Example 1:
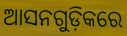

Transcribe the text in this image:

ଆସନଗୁଡ଼ିକରେ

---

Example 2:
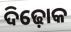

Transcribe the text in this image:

ଦିଢ଼ୋକ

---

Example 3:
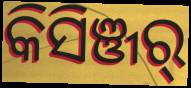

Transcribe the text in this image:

କିସିଞ୍ଜର୍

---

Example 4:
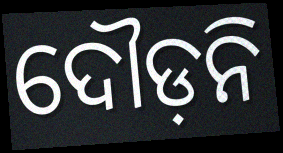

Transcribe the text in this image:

ଦୌଡ଼ନି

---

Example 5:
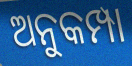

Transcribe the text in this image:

ଅନୁକମ୍ପା